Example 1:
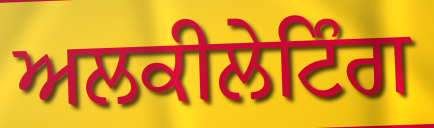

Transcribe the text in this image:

ਅਲਕੀਲੇਟਿੰਗ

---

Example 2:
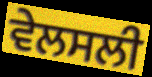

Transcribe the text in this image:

ਵੇਲਸਲੀ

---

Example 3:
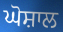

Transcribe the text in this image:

ਘੋਸ਼ਾਲ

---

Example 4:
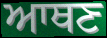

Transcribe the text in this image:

ਆਥਣ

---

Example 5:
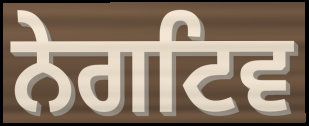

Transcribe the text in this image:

ਨੇਗਟਿਵ